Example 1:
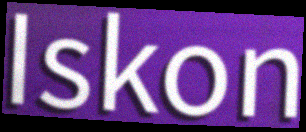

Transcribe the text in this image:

Iskon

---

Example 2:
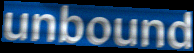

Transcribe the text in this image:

unbound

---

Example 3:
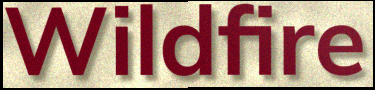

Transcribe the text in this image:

Wildfire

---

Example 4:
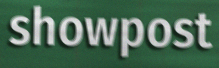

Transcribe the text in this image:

showpost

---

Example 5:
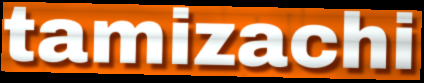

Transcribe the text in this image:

tamizachi